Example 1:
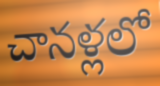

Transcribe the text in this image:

చానళ్లలో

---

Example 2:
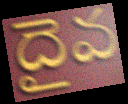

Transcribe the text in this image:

దైవ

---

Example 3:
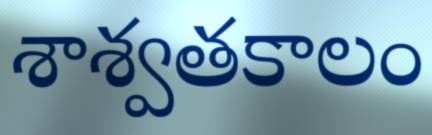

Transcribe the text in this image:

శాశ్వతకాలం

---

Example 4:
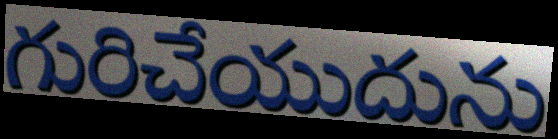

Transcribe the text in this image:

గురిచేయుదును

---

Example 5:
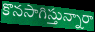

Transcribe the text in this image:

కొనసాగిస్తున్నారా